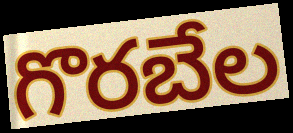
గొరబేల